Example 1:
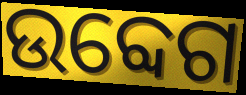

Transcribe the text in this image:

ଉବ୍ଦେଗ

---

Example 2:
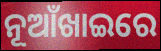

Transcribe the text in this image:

ନୂଆଁଖାଇରେ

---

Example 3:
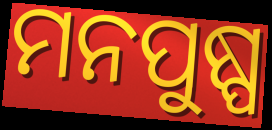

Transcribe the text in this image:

ମନପୁଷ୍ପ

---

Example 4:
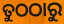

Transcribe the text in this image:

ତୁଠଠାରୁ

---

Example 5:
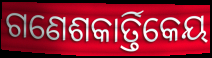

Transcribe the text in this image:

ଗଣେଶକାର୍ତ୍ତିକେୟ